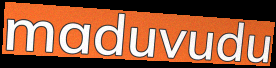
maduvudu